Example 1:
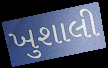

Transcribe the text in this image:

ખુશાલી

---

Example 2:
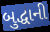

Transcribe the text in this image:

બુદ્ધાની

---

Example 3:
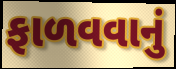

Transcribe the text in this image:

ફાળવવાનું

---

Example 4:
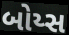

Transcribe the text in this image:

બોય્સ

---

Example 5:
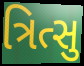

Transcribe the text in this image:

ત્રિત્સુ